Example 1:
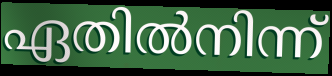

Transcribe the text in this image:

ഏതിൽനിന്ന്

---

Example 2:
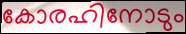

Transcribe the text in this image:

കോരഹിനോടും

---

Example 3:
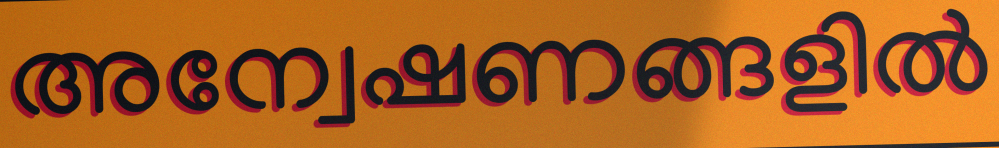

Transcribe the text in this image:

അന്വേഷണങ്ങളിൽ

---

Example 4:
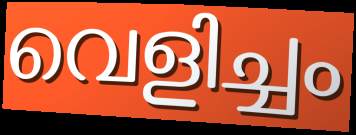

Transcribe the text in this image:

വെളിച്ചം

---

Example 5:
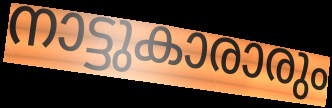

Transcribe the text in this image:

നാട്ടുകാരാരും